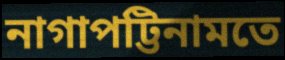
নাগাপট্টিনামতে